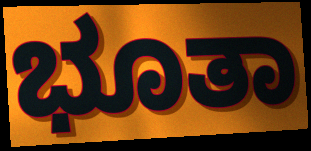
ಭೂತಾ